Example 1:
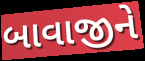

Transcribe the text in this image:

બાવાજીને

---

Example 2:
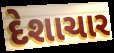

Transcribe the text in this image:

દેશાચાર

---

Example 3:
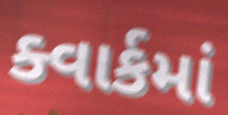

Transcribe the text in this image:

ક્વાર્કમાં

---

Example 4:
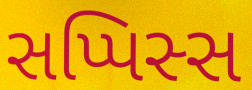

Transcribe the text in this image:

સપ્પિસ્સ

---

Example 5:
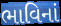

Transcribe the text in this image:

ભાવિનાં